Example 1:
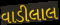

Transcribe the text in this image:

વાડીલાલ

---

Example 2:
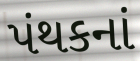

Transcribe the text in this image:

પંથકનાં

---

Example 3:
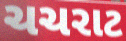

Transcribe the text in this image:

ચચરાટ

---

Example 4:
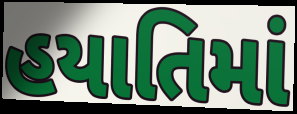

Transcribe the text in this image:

હયાતિમાં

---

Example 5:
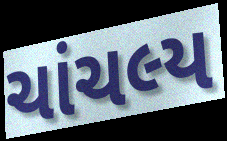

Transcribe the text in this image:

ચાંચલ્ય